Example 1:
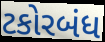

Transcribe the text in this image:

ટકોરબંધ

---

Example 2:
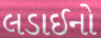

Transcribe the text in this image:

લડાઈનો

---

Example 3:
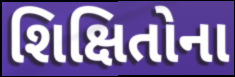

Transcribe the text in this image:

શિક્ષિતોના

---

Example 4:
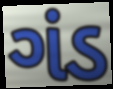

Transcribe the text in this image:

ગંડ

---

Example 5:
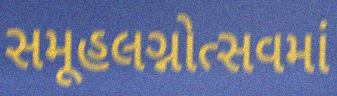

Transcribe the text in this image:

સમૂહલગ્નોત્સવમાં